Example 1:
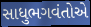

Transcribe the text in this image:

સાધુભગવંતોએ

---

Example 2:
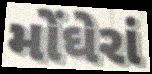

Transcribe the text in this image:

મોંઘેરાં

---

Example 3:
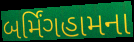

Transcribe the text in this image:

બર્મિંગહામના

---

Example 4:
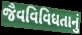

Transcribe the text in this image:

જૈવવિવિધતાનું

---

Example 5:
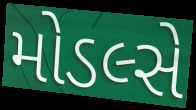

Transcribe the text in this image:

મોડલ્સે